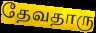
தேவதாரு